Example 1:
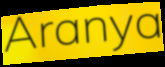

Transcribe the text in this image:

Aranya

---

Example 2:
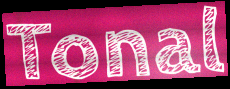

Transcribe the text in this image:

Tonal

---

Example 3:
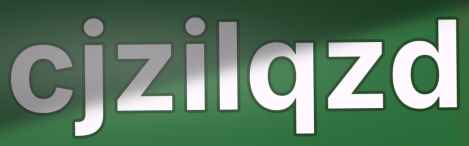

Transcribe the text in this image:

cjzilqzd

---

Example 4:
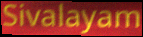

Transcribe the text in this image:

Sivalayam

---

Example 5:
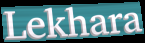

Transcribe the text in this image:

Lekhara